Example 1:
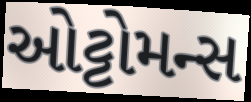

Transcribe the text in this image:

ઓટ્ટોમન્સ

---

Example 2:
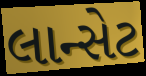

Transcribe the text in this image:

લાન્સેટ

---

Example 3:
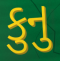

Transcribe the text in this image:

કુનુ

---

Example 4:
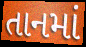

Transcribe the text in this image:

તાનમાં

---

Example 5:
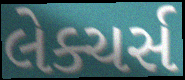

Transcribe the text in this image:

લેક્ચર્સ